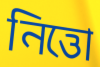
নিত্তো